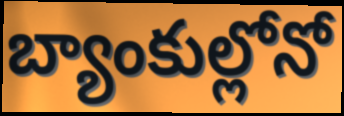
బ్యాంకుల్లోనో